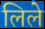
लिले